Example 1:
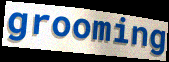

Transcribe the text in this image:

grooming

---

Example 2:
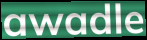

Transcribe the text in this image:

awadle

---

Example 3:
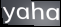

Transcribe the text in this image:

yaha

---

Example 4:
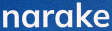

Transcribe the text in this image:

narake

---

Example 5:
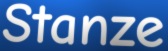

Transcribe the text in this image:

Stanze